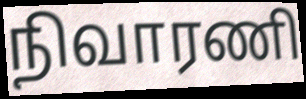
நிவாரணி